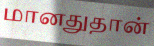
மானதுதான்